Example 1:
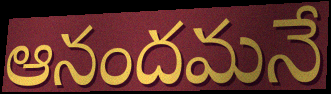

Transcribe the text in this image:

ఆనందమనే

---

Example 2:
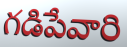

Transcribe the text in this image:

గడిపేవారి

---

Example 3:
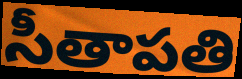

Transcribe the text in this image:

సీతాపతి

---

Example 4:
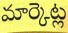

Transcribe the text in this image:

మార్కెట్ల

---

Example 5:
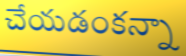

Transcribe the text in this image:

చేయడంకన్నా